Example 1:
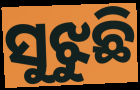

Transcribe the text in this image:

ସୁଝୁଛି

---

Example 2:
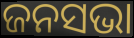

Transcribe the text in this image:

ଜନସଭା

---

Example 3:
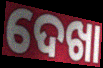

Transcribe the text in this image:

ଦେଖା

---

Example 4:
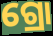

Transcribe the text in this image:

ଗ୍ରୋ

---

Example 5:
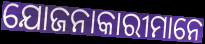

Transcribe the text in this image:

ଯୋଜନାକାରୀମାନେ